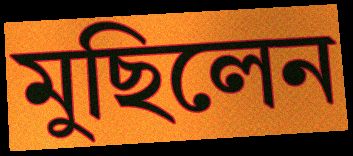
মুছিলেন